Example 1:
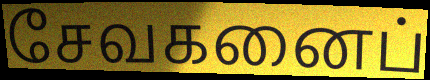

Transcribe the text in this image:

சேவகனைப்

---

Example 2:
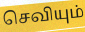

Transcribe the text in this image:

செவியும்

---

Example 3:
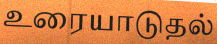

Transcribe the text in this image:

உரையாடுதல்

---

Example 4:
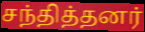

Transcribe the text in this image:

சந்தித்தனர்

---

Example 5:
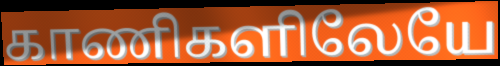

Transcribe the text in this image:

காணிகளிலேயே